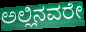
ಅಲ್ಲಿನವರೇ